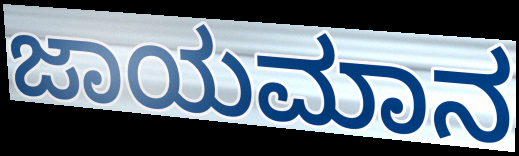
ಜಾಯಮಾನ